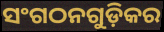
ସଂଗଠନଗୁଡ଼ିକର